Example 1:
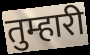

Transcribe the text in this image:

तुम्हारी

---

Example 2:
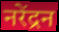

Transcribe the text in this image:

नरेंद्रन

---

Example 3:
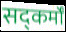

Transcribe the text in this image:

सद्कर्मों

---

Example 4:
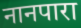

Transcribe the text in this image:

नानपारा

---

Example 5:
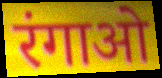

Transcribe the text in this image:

रंगाओ